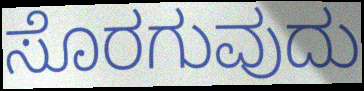
ಸೊರಗುವುದು